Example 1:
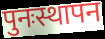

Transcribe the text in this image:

पुनःस्थापन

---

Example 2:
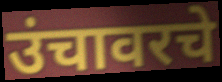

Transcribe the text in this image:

उंचावरचे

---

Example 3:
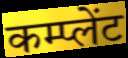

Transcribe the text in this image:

कम्प्लेंट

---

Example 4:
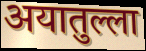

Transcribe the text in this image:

अयातुल्ला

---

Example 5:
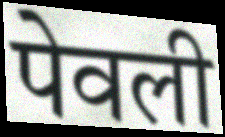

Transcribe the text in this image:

पेवली